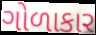
ગોળાકાર